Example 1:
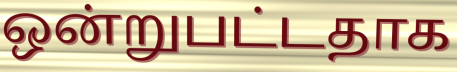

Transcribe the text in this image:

ஒன்றுபட்டதாக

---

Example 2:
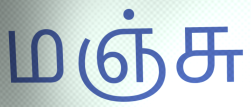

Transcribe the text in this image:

மஞ்சு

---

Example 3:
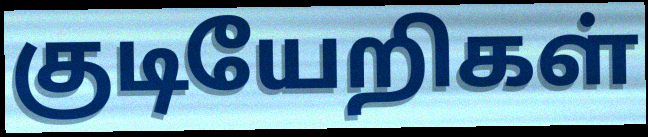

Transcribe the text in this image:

குடியேறிகள்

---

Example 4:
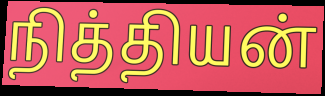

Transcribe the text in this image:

நித்தியன்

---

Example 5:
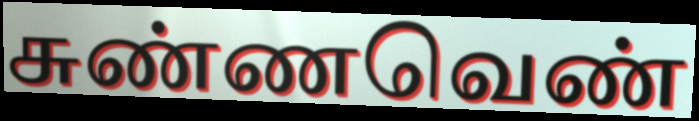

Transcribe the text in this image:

சுண்ணவெண்